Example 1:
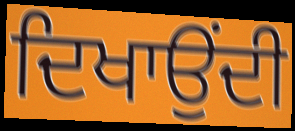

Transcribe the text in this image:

ਦਿਖਾਉਂਦੀ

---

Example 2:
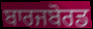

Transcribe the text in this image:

ਬਾਰਜਬੋਰਡ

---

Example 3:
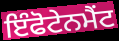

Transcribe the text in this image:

ਇੰਫੋਟੇਨਮੈਂਟ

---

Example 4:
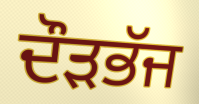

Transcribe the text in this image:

ਦੌੜਭੱਜ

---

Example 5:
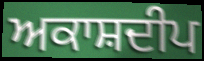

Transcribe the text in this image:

ਅਕਾਸ਼ਦੀਪ